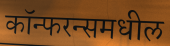
कॉन्फरन्समधील